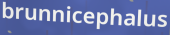
brunnicephalus